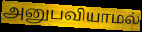
அனுபவியாமல்